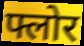
फ्लोर